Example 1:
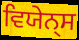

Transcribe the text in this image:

ਵਿਯੇਨ੍ਸ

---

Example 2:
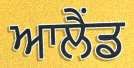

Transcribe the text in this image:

ਆਲੈਂਡ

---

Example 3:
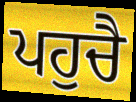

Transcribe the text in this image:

ਪਹੁਚੈ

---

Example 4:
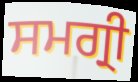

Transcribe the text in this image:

ਸਮਗ੍ਰੀ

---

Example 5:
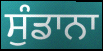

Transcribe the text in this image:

ਸੁੰਡਾਨਾ